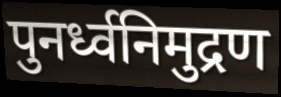
पुनर्ध्वनिमुद्रण